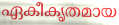
ഏകീകൃതമായ